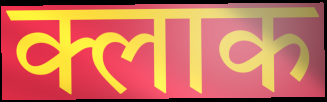
क्लाक